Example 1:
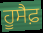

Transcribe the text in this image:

ਹੂਸੈਫ਼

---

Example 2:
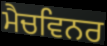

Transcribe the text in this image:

ਮੈਚਵਿਨਰ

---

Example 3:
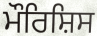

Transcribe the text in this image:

ਮੌਰਿਸ਼ਿਸ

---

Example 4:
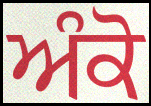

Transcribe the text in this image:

ਅੰਕੋ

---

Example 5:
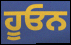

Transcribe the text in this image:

ਹੂਓਨ